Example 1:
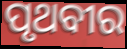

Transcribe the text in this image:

ପୃଥବୀର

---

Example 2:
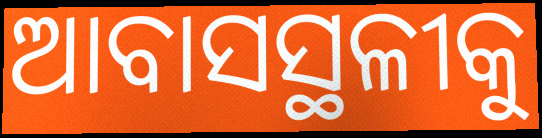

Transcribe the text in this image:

ଆବାସସ୍ଥଳୀକୁ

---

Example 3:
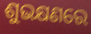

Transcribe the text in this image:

ଶୁଭକ୍ଷଣରେ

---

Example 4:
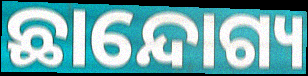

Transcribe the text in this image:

ଛାନ୍ଦୋଗ୍ୟ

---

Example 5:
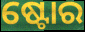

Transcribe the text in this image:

ଷ୍ଟୋର